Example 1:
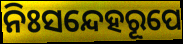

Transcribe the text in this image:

ନିଃସନ୍ଦେହରୂପେ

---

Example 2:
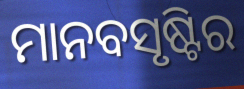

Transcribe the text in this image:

ମାନବସୃଷ୍ଟିର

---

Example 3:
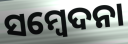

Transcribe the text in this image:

ସମ୍ବେଦନା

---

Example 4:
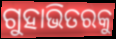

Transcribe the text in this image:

ଗୁହାଭିତରକୁ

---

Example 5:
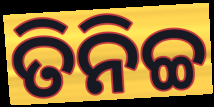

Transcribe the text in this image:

ତିନିଚ୍ଚ